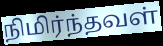
நிமிர்ந்தவள்